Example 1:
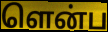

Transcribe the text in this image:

ளென்ப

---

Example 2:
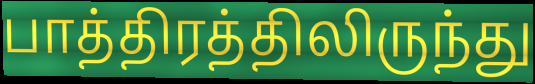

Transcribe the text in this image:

பாத்திரத்திலிருந்து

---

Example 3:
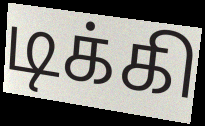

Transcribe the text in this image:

டிக்கி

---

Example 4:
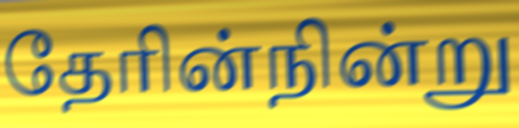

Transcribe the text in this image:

தேரின்நின்று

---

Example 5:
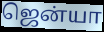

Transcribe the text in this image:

ஜென்யா